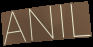
ANIL